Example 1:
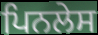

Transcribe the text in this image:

ਪਿਨਲੇਸ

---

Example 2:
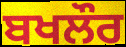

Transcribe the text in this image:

ਬਖਲੌਰ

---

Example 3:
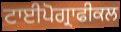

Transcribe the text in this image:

ਟਾਈਪੋਗ੍ਰਾਫੀਕਲ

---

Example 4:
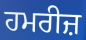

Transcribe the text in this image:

ਹਮਰੀਜ਼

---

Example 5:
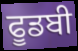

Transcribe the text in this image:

ਫੂਡਬੀ